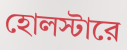
হোলস্টারে